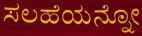
ಸಲಹೆಯನ್ನೋ